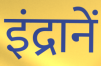
इंद्रानें